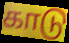
காடு